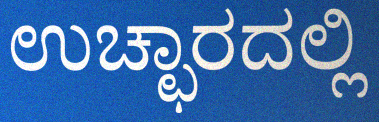
ಉಚ್ಛಾರದಲ್ಲಿ